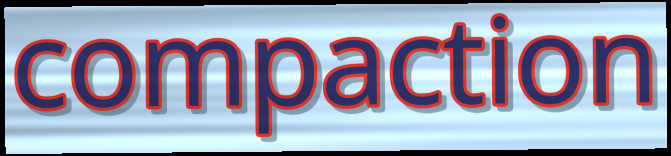
compaction